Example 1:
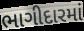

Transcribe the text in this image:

ભાગીદારમાં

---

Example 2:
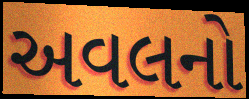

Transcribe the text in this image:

અવલનો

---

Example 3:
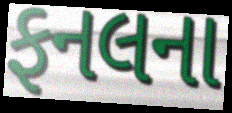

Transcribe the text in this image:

ફનલના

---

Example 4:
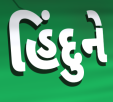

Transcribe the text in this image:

હિંદુને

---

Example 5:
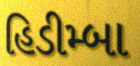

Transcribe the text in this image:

હિડીમ્બા